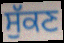
ਸੁੱਕਣ